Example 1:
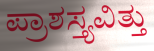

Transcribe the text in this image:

ಪ್ರಾಶಸ್ತ್ಯವಿತ್ತು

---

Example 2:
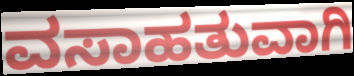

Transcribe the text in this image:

ವಸಾಹತುವಾಗಿ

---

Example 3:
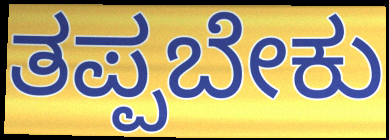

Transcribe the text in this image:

ತಪ್ಪಬೇಕು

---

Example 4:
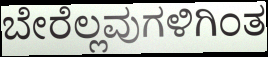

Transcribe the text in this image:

ಬೇರೆಲ್ಲವುಗಳಿಗಿಂತ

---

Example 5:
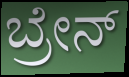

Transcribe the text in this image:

ಬ್ರೇನ್